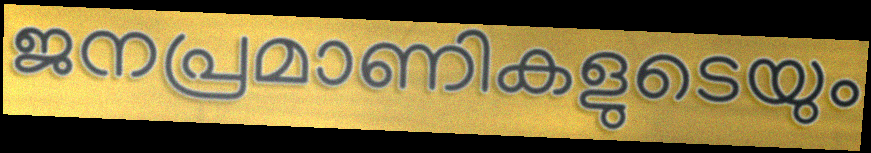
ജനപ്രമാണികളുടെയും